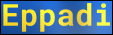
Eppadi